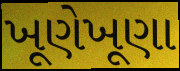
ખૂણેખૂણા